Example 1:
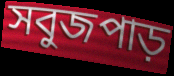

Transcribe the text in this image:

সবুজপাড়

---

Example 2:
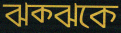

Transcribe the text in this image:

ঝক্ঝকে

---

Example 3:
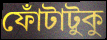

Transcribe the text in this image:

ফোঁটাটুকু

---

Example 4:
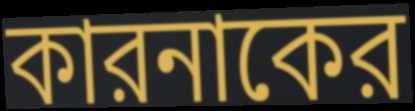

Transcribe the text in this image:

কারনাকের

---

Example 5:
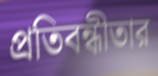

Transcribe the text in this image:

প্রতিবন্ধীতার